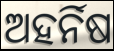
ଅହର୍ନିଷ